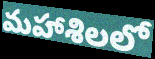
మహాశిలలో